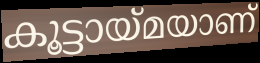
കൂട്ടായ്മയാണ്